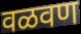
वळवण